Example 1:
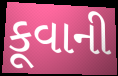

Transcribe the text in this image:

કૂવાની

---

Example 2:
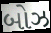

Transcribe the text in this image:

બોઝ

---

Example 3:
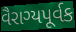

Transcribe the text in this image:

વૈરાગ્યપૂર્વક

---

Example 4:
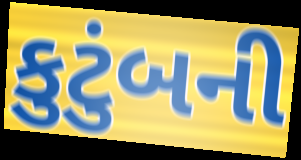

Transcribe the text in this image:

કુટુંબની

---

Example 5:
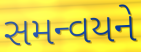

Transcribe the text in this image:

સમન્વયને